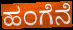
ಹಂಗೆನೆ